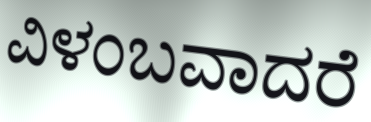
ವಿಳಂಬವಾದರೆ